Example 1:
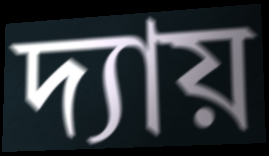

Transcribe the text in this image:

দ্যায়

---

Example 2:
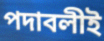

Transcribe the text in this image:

পদাবলীই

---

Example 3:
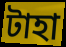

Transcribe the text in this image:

টাহা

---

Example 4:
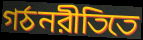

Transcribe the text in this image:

গঠনরীতিতে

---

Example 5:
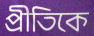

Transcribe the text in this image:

প্রীতিকে